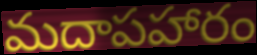
మదాపహారం